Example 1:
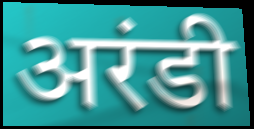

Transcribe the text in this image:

अरंडी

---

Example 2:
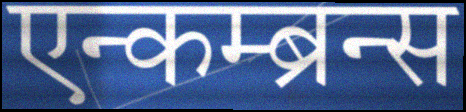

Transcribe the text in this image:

एन्कम्ब्रन्स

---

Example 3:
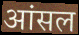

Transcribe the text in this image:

आंसल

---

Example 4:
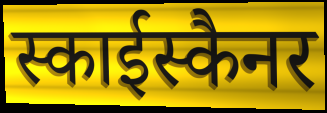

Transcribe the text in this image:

स्काईस्कैनर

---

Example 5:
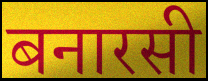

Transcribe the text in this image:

बनारसी